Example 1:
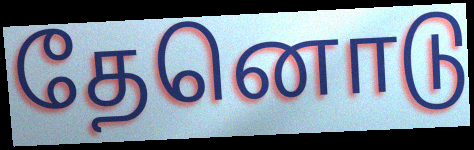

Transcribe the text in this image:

தேனொடு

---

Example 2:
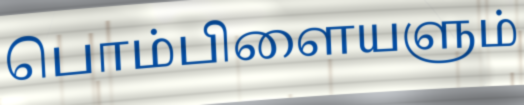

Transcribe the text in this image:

பொம்பிளையளும்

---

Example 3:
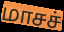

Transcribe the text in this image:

மாசச்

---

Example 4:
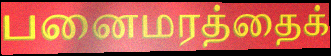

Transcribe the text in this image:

பனைமரத்தைக்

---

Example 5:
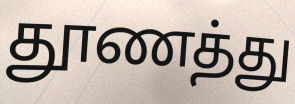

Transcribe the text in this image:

தூணத்து